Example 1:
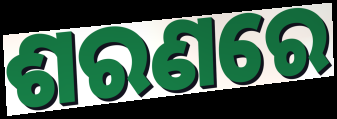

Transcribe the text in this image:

ଶରଣରେ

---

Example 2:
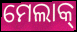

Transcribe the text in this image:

ମେଲାକ୍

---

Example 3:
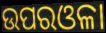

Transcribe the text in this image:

ଉପରଓଳା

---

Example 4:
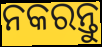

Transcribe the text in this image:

ନକରନ୍ତୁ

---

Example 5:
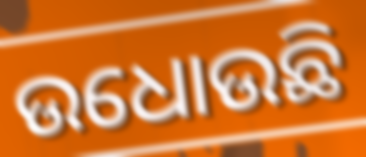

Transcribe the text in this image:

ଉଧୋଉଛି